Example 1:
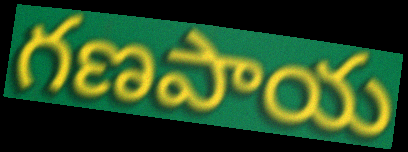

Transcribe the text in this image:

గణపాయ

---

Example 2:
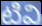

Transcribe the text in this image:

టివి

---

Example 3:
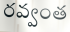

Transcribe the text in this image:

రవ్వంత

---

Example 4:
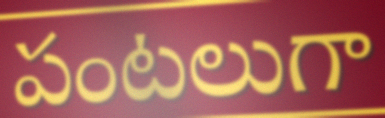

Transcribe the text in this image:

పంటలుగా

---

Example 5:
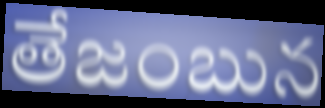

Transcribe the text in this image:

తేజంబున